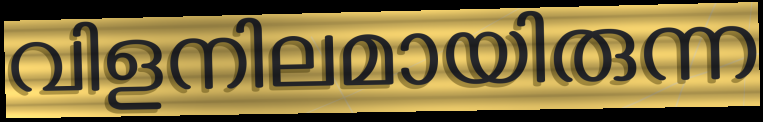
വിളനിലമായിരുന്ന